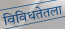
विविधतेतला